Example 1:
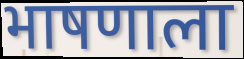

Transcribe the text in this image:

भाषणाला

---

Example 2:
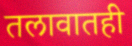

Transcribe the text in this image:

तलावातही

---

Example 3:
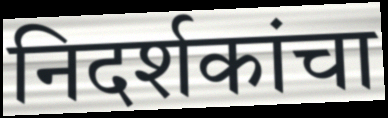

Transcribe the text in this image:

निदर्शकांचा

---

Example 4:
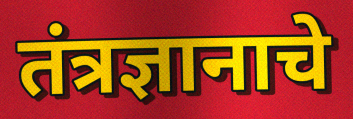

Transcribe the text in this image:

तंत्रज्ञानाचे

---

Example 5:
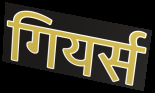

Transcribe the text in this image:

गियर्स